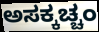
ಅಸಕ್ಕಚ್ಚಂ